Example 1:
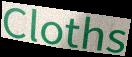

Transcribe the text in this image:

Cloths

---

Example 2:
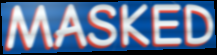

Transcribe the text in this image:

MASKED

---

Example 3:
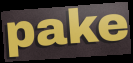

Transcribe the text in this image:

pake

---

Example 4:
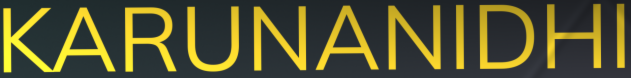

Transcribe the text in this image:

KARUNANIDHI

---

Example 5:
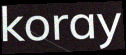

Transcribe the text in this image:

koray